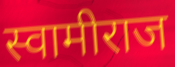
स्वामीराज